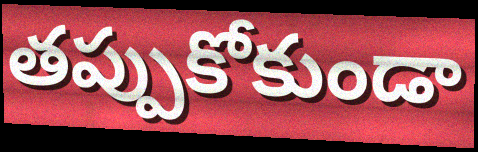
తప్పుకోకుండా